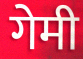
गेमी